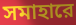
সমাহারে